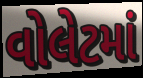
વોલેટમાં